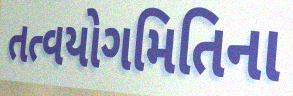
તત્વયોગમિતિના